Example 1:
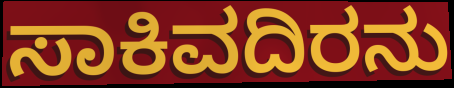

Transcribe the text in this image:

ಸಾಕಿವದಿರನು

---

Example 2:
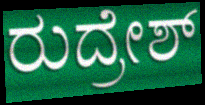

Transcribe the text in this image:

ರುದ್ರೇಶ್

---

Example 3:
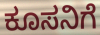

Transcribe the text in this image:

ಕೂಸನಿಗೆ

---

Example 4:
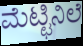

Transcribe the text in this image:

ಮೆಟ್ಟಿನಿಲೆ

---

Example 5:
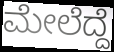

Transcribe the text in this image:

ಮೇಲೆದ್ದೆ